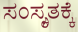
ಸಂಸ್ಕೃತಕ್ಕೆ